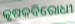
କୃଷକବିରୋଧୀ